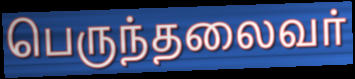
பெருந்தலைவர்